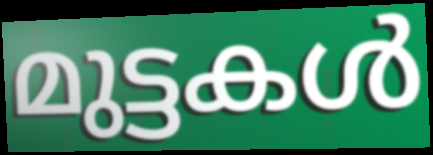
മുട്ടകൾ